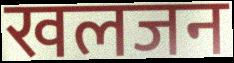
खलजन